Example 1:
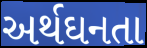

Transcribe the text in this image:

અર્થઘનતા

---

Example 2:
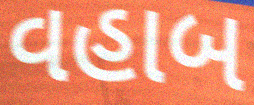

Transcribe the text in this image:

વહાબ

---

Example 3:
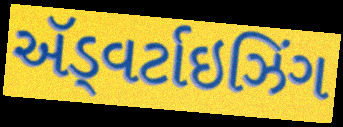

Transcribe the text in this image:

ઍડ્વર્ટાઇઝિંગ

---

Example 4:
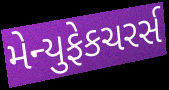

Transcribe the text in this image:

મેન્યુફેકચરર્સ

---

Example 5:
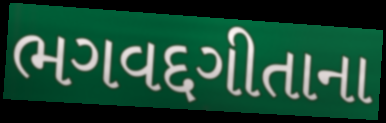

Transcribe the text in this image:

ભગવદ્દગીતાના